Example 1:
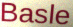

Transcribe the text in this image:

Basle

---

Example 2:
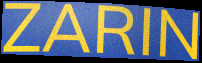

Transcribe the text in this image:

ZARIN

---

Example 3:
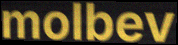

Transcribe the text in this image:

molbev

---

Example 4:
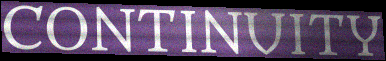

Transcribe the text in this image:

CONTINUITY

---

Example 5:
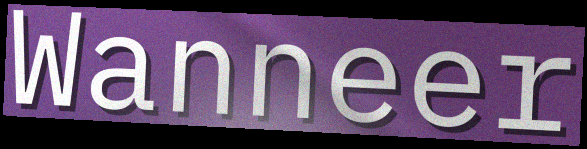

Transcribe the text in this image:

Wanneer